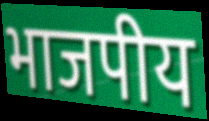
भाजपीय